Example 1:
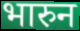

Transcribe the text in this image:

भारुन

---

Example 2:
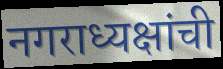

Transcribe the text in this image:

नगराध्यक्षांची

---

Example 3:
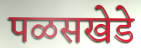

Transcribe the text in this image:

पळसखेडे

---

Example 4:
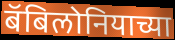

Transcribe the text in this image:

बॅबिलोनियाच्या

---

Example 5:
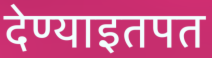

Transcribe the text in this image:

देण्याइतपत